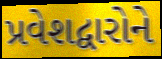
પ્રવેશદ્વારોને